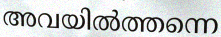
അവയിൽത്തന്നെ